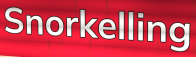
Snorkelling